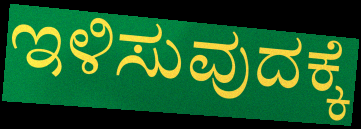
ಇಳಿಸುವುದಕ್ಕೆ